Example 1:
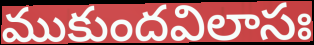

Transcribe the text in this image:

ముకుందవిలాసః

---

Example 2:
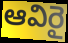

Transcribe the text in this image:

ఆవిరై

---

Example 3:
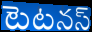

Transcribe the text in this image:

టెటనస్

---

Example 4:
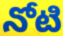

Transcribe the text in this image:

నోటి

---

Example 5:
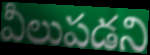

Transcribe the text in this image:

వీలుపడని